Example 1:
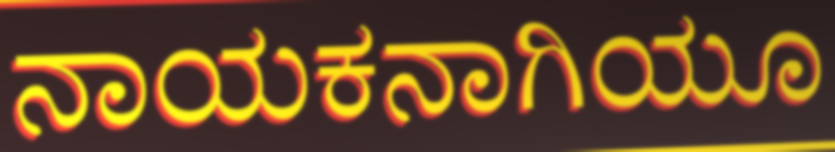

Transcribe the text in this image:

ನಾಯಕನಾಗಿಯೂ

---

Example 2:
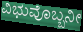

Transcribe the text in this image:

ವಿಭುವೊಬ್ಬನೀ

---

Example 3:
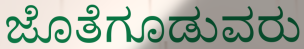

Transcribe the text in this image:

ಜೊತೆಗೂಡುವರು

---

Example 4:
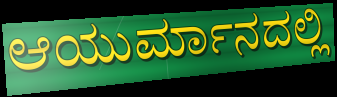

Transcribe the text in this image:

ಆಯುರ್ಮಾನದಲ್ಲಿ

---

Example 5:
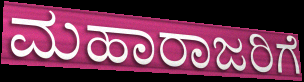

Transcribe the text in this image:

ಮಹಾರಾಜರಿಗೆ